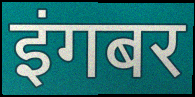
इंगबर